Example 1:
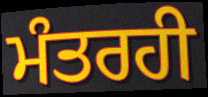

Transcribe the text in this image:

ਮੰਤਰਹੀ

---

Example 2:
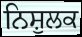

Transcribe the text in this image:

ਨਿਸ਼ੁਲਕ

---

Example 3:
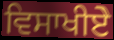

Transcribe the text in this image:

ਵਿਸਾਖੀਏੇ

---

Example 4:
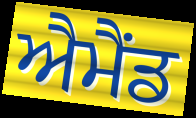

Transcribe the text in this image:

ਐਮੈਂਡ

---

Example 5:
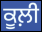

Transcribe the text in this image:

ਕੂਲ਼ੀ